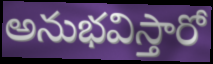
అనుభవిస్తారో